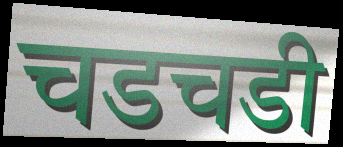
चडचडी